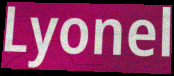
Lyonel